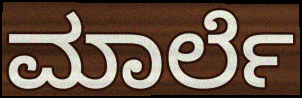
ಮಾರ್ಲೆ